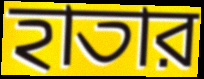
হাতার